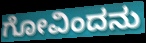
ಗೋವಿಂದನು